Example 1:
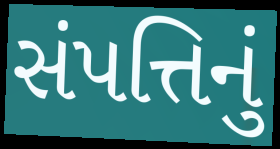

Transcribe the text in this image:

સંપત્તિનું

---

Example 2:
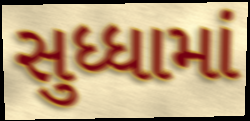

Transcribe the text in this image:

સુધ્ધામાં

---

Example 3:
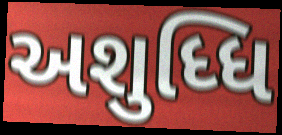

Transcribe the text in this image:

અશુધ્ધિ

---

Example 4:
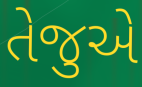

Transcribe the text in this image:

તેજુએ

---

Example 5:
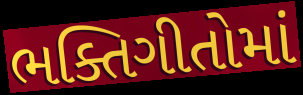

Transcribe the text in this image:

ભક્તિગીતોમાં